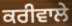
ਕਰੀਵਾਲੇ